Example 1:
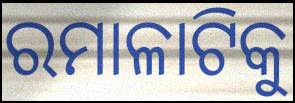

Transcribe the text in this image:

ରମାଳାଟିକୁ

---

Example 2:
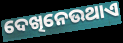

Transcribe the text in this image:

ଦେଖିନେଉଥାଏ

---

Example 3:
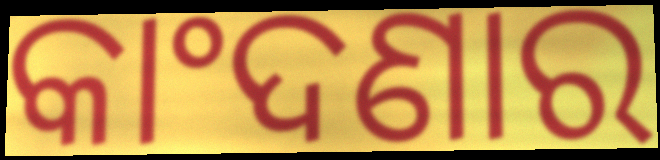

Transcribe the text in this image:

କାଂଦଣାର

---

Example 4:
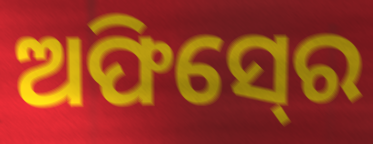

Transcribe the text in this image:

ଅଫିସ୍‍ରେ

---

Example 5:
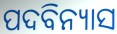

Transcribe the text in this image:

ପଦବିନ୍ୟାସ